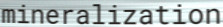
mineralization